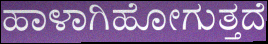
ಹಾಳಾಗಿಹೋಗುತ್ತದೆ